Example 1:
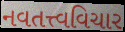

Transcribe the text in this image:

નવતત્ત્વવિચાર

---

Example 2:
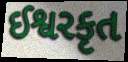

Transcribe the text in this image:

ઈશ્વરકૃત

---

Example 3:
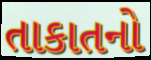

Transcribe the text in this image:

તાકાતનો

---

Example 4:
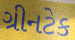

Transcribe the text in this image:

ગ્રીનટેક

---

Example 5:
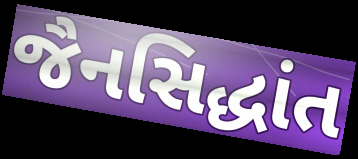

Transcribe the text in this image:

જૈનસિદ્ધાંત